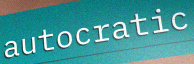
autocratic